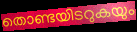
തൊണ്ടയിടറുകയും